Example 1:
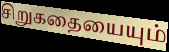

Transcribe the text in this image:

சிறுகதையையும்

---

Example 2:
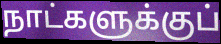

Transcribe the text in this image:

நாட்களுக்குப்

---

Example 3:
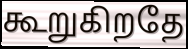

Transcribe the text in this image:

கூறுகிறதே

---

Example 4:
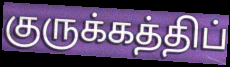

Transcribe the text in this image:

குருக்கத்திப்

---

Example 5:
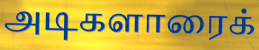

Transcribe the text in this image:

அடிகளாரைக்